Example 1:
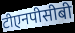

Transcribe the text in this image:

टीएनपीसीबी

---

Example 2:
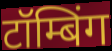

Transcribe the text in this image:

टॉम्बिंग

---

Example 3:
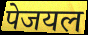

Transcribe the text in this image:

पेजयल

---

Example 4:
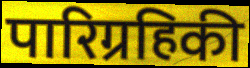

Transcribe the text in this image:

पारिग्रहिकी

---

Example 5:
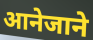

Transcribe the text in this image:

आनेजाने